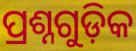
ପ୍ରଶ୍ନଗୁଡ଼ିକ